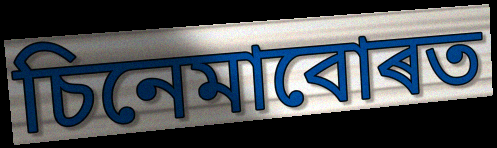
চিনেমাবোৰত